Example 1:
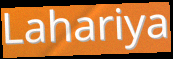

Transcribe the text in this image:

Lahariya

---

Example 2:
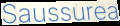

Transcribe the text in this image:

Saussurea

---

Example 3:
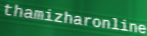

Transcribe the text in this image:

thamizharonline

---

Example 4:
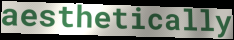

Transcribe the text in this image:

aesthetically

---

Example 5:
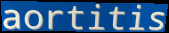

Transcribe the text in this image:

aortitis